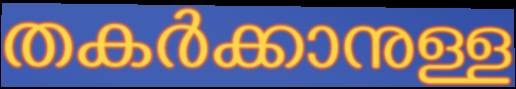
തകർക്കാനുള്ള